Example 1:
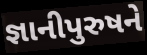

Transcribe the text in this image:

જ્ઞાનીપુરુષને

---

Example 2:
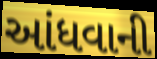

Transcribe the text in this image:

આંધવાની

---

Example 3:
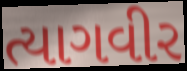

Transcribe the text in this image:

ત્યાગવીર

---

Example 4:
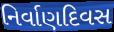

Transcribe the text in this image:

નિર્વાણદિવસ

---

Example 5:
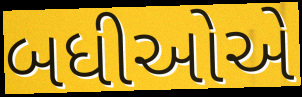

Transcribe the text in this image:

બધીઓએ